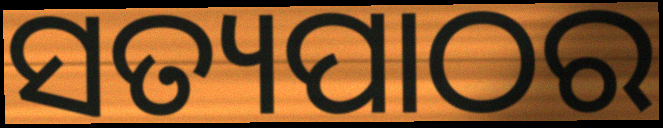
ସତ୍ୟପାଠର